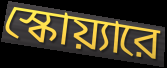
স্কোয়্যারে